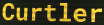
Curtler